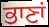
ਭਾਣਾਂ